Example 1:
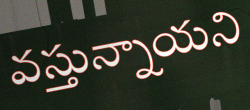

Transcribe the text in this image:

వస్తున్నాయని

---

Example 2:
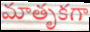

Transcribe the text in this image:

మాతృకగా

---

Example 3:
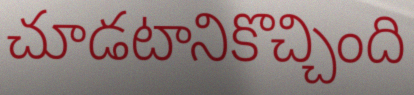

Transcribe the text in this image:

చూడటానికొచ్చింది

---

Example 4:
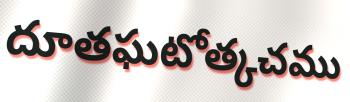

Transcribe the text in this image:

దూతఘటోత్కచము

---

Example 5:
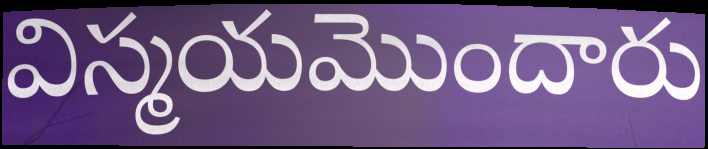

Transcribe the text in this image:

విస్మయమొందారు